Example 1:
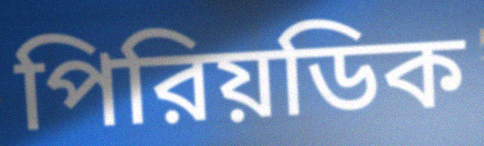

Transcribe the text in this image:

পিরিয়ডিক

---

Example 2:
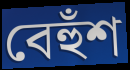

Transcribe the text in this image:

বেহুঁশ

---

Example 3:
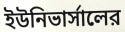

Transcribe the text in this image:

ইউনিভার্সালের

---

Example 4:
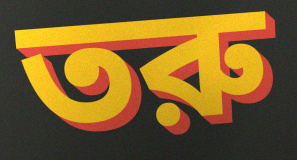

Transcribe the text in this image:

তরু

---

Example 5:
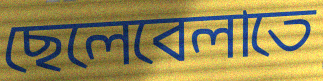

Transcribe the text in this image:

ছেলেবেলাতে